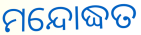
ମନ୍ଦୋଦ୍ଧତ